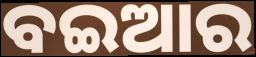
ବଇଆର